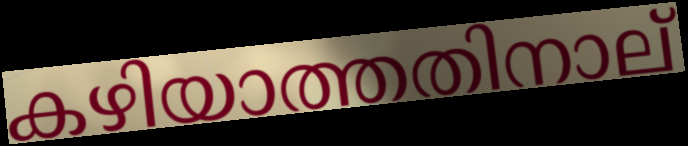
കഴിയാത്തതിനാല്